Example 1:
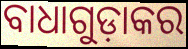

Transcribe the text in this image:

ବାଧାଗୁଡ଼ାକର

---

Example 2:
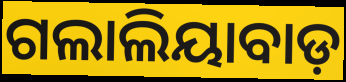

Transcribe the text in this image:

ଗଲାଲିୟାବାଡ଼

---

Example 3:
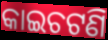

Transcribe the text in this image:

କାଇଚଟଣି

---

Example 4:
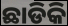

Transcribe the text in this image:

ଛାଡିକି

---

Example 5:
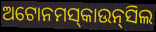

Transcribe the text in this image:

ଅଟୋନମସ୍‌କାଉନ୍‌ସିଲ